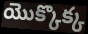
యొక్కొక్క